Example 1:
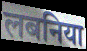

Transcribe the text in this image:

लबनिया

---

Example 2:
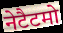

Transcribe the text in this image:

नेटैटमो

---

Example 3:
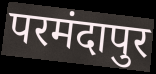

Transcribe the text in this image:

परमंदापुर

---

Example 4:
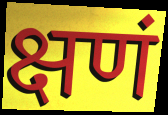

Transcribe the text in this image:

क्षणं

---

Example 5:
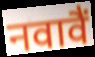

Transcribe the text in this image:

नवावैं